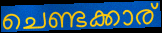
ചെണ്ടക്കാര്